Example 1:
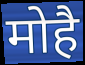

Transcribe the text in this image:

मोहै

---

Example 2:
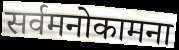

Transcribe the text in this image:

सर्वमनोकामना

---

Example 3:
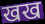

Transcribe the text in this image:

खख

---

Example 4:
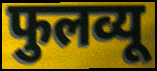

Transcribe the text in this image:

फुलव्यू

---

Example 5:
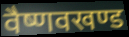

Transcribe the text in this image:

वैष्णवखण्ड